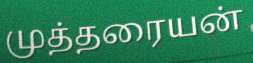
முத்தரையன்